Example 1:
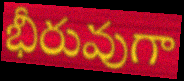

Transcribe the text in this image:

భీరువుగా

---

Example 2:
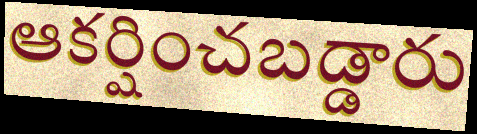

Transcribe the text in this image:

ఆకర్షించబడ్డారు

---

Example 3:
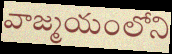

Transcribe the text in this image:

వాజ్మయంలోని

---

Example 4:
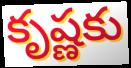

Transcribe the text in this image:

కృష్ణకు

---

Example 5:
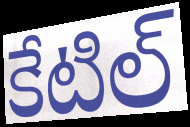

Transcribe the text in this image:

కేటిల్